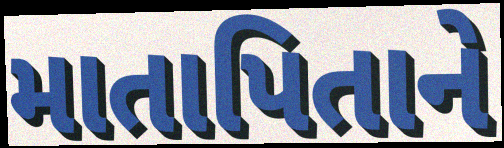
માતાપિતાને